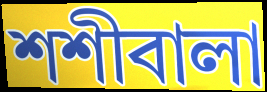
শশীবালা